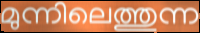
മുന്നിലെത്തുന്ന